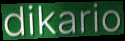
dikario